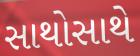
સાથોસાથે